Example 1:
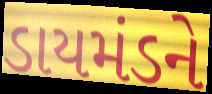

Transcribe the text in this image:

ડાયમંડને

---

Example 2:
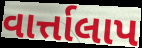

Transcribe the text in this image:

વાર્ત્તાલાપ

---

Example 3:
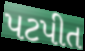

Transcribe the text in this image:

પટપીત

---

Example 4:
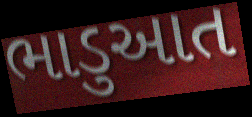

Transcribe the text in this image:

ભાડુઆત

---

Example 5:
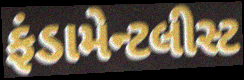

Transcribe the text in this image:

ફંડામેન્ટલીસ્ટ